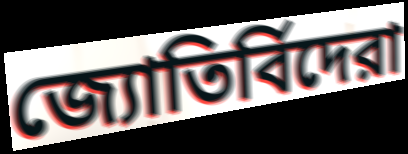
জ্যোতির্বিদেরা